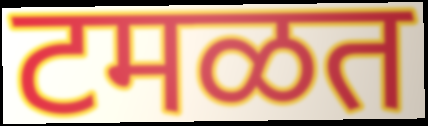
टमळत